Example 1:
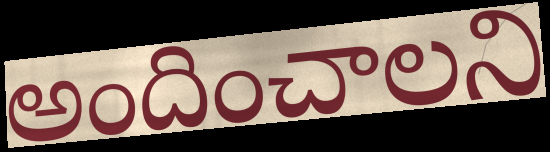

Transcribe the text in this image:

అందించాలని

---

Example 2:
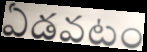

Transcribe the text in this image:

ఏడవటం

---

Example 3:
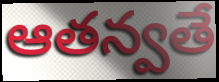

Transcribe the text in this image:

ఆతన్వతే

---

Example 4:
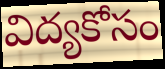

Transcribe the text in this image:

విద్యకోసం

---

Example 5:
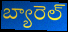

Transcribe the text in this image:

బ్యారెల్